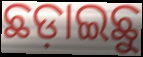
ଛଡ଼ାଇଛୁ